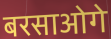
बरसाओगे